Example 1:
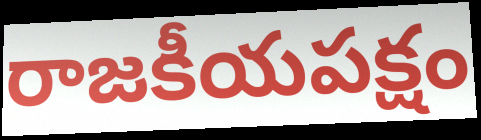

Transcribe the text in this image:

రాజకీయపక్షం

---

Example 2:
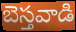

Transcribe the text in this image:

బెస్తవాడి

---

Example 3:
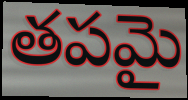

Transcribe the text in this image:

తపమై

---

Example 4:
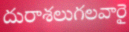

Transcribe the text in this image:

దురాశలుగలవారై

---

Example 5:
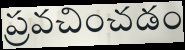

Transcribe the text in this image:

ప్రవచించడం